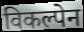
विकल्पेन